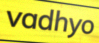
vadhyo